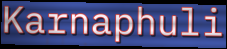
Karnaphuli